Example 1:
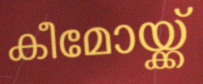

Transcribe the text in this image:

കീമോയ്ക്ക്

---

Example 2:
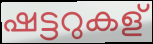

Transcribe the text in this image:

ഷട്ടറുകള്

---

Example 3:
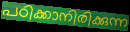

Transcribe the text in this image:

പഠിക്കാനിരിക്കുന്ന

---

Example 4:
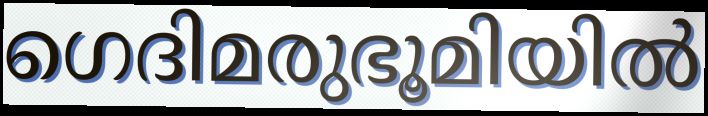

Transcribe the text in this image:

ഗെദിമരുഭൂമിയിൽ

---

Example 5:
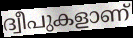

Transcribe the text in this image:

ദ്വീപുകളാണ്